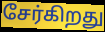
சேர்கிறது